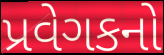
પ્રવેગકનો